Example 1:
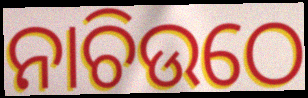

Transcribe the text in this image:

ନାଚିଉଠେ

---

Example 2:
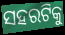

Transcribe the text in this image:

ସହରଟିକୁ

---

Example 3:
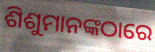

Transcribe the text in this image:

ଶିଶୁମାନଙ୍କଠାରେ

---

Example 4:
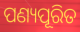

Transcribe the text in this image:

ପଣ୍ୟପୂରିତ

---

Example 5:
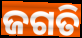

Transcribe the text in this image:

ଜଗତି